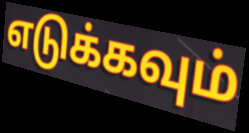
எடுக்கவும்